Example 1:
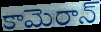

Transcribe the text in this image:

కామెరాన్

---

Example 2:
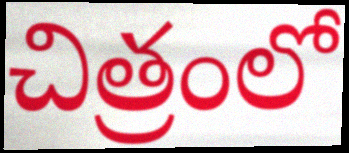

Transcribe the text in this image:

చిత్రంలో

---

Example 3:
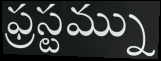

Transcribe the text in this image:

ఫ్రస్టమ్ను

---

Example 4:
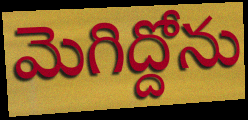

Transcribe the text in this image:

మెగిద్దోను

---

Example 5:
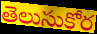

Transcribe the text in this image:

తెలుసుకోర